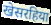
खेसरहिया